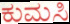
ಕುಮಸಿ